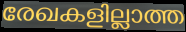
രേഖകളില്ലാത്ത